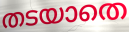
തടയാതെ